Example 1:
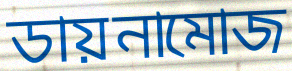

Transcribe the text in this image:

ডায়নামোজ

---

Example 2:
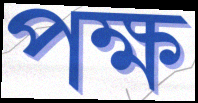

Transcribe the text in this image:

পক্ষ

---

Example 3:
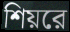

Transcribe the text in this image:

শিয়রে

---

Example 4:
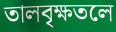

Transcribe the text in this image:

তালবৃক্ষতলে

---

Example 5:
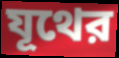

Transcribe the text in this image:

যূথের